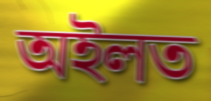
অইলত